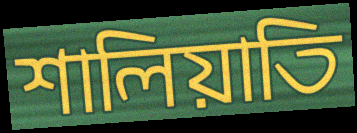
শালিয়াতি